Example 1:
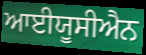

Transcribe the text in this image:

ਆਈਯੂਸੀਐਨ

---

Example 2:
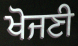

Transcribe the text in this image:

ਖੋਜਣੀ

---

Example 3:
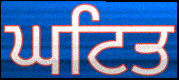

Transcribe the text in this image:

ਘਟਿਤ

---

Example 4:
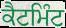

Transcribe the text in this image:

ਕੈਟਮਿੰਟ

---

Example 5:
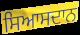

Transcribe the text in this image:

ਸਿਆਸਦਾਨ